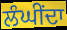
ਲੰਘੀਂਦਾ